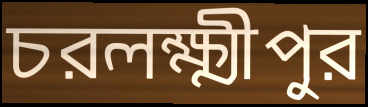
চরলক্ষ্মীপুর